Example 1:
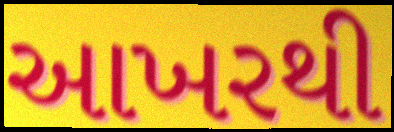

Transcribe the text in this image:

આખરથી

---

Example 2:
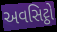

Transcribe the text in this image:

અવસિટ્ઠો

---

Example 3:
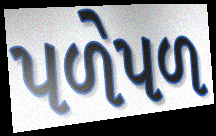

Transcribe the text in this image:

પળેપળ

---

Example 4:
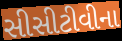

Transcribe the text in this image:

સીસીટીવીના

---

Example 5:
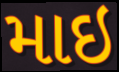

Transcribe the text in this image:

માઇ